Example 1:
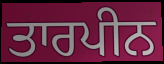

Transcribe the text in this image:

ਤਾਰਪੀਨ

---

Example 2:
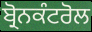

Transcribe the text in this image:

ਬ੍ਰੋਨਕੰਟਰੋਲ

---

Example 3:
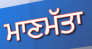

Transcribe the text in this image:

ਮਾਣਮੱਤਾ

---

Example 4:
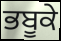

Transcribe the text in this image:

ਭਬੂਕੇ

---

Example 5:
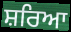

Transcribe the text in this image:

ਸ਼ਰਿਆ